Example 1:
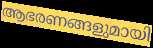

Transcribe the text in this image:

ആഭരണങ്ങളുമായി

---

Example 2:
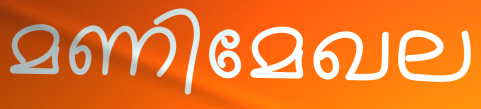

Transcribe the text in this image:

മണിമേഖല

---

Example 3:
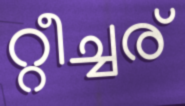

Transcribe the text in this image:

റ്റീച്ചര്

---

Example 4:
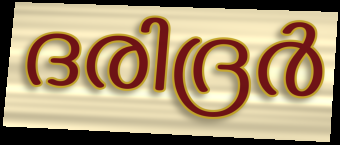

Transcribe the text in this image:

ദരിദ്രർ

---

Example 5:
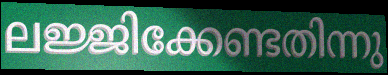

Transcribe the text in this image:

ലജ്ജിക്കേണ്ടതിന്നു